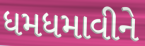
ધમધમાવીને